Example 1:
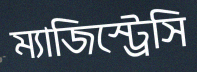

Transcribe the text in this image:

ম্যাজিস্ট্রেসি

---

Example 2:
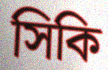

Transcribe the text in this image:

সিকি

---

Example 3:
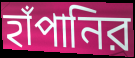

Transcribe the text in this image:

হাঁপানির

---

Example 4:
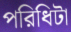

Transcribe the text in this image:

পরিধিটা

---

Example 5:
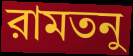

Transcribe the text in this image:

রামতনু